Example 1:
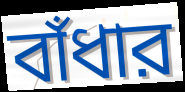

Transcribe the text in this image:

বাঁধার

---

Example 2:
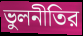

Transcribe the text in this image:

ভুলনীতির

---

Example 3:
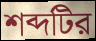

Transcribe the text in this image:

শব্দটির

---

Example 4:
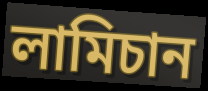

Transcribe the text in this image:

লামিচান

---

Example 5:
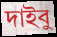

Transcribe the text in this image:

দাইবু